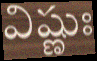
విష్ణుః